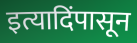
इत्यादिंपासून